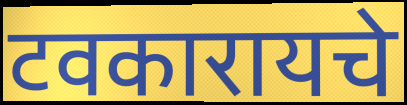
टवकारायचे